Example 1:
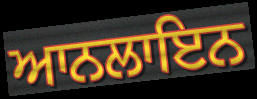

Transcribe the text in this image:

ਆਨਲਾਇਨ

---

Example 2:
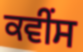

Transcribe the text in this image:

ਕਵੀਂਸ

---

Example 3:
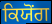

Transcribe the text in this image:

ਕਿਯੋਂਗ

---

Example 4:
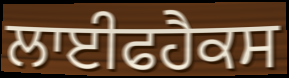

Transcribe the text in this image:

ਲਾਈਫਹੈਕਸ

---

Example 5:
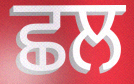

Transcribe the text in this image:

ਛਲ